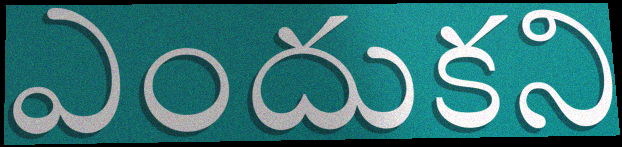
ఎందుకని